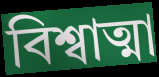
বিশ্বাত্মা